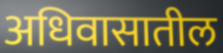
अधिवासातील